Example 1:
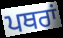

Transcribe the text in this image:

ਪਥਰਾਂ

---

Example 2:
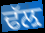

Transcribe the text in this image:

ਢੱਲ਼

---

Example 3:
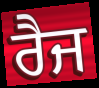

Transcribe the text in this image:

ਰੈਜ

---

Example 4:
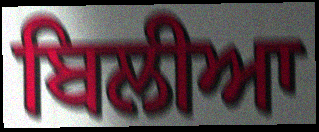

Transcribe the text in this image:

ਬਿਲੀਆ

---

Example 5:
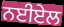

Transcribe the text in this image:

ਨਈਏਲ